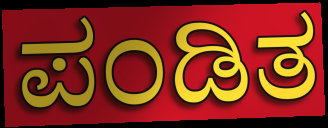
ಪಂಡಿತ